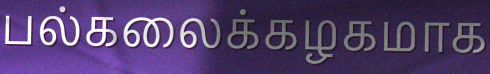
பல்கலைக்கழகமாக